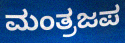
ಮಂತ್ರಜಪ